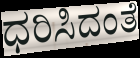
ಧರಿಸಿದಂತೆ